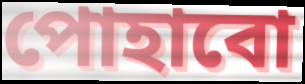
পোহাবো